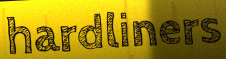
hardliners